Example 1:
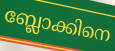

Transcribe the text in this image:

ബ്ലോക്കിനെ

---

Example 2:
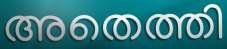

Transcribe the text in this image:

അതെത്തി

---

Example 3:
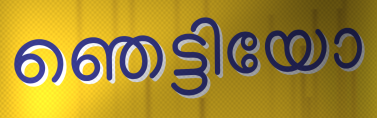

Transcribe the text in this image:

ഞെട്ടിയോ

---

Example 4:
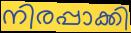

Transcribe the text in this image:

നിരപ്പാക്കി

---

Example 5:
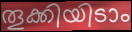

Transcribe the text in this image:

തൂക്കിയിടാം